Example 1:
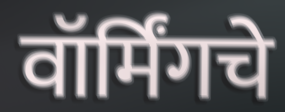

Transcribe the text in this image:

वॉर्मिंगचे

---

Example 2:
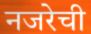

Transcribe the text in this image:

नजरेची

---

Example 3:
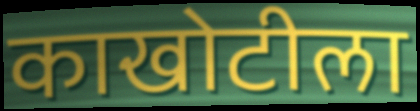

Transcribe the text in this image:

काखोटीला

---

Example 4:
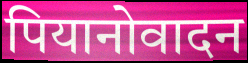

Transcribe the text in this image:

पियानोवादन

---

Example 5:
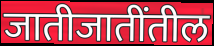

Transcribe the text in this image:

जातीजातींतील